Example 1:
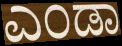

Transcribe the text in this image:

ಎಂಡಾ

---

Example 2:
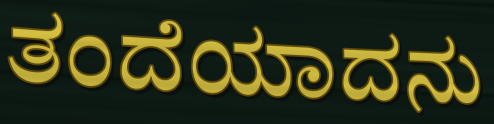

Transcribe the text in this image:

ತಂದೆಯಾದನು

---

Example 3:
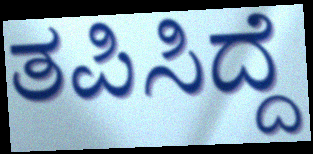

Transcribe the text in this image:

ತಪಿಸಿದ್ದೆ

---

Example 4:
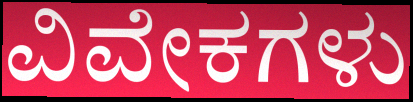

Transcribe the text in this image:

ವಿವೇಕಗಳು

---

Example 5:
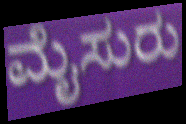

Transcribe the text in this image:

ಮೈಸುರು